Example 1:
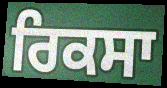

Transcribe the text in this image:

ਰਿਕਸਾ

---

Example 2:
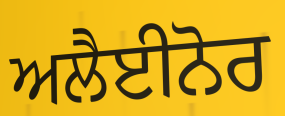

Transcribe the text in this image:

ਅਲੈਈਨੋਰ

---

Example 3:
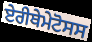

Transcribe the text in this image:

ਏਰੀਥੇਮੇਟੋਸਸ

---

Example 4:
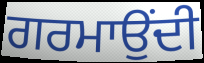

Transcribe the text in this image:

ਗਰਮਾਉਂਦੀ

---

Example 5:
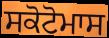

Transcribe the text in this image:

ਸਕੋਟੋਮਾਸ